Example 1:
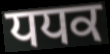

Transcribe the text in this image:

ਧਧਕ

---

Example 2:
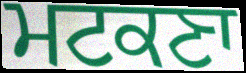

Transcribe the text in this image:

ਮਟਕਣਾ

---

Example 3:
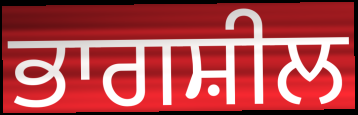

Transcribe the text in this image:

ਭਾਗਸ਼ੀਲ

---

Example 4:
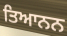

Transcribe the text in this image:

ਤਿਆਨਨ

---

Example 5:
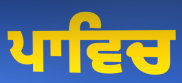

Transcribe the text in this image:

ਪਾਵਿਚ